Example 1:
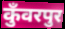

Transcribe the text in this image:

कुँवरपुर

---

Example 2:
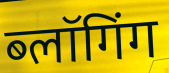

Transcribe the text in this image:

ब्‍लॉगिंग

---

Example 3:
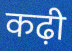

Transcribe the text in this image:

कढ़ी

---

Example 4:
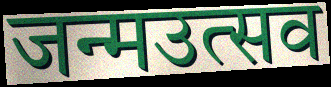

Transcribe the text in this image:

जन्मउत्सव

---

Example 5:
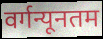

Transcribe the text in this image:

वर्गन्यूनतम